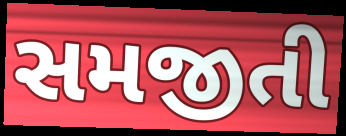
સમજીતી